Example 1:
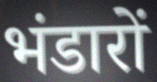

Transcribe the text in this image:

भंडारों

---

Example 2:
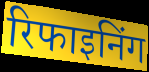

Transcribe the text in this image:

रिफाइनिंग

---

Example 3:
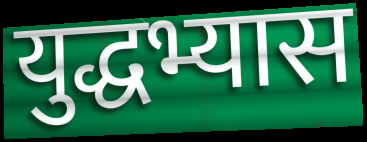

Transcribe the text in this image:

युद्धभ्यास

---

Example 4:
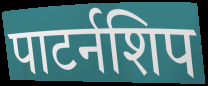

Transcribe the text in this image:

पाटर्नशिप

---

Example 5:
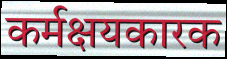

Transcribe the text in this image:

कर्मक्षयकारक